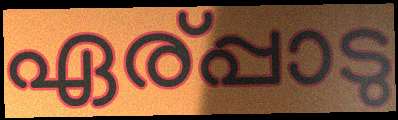
ഏര്പ്പാടു